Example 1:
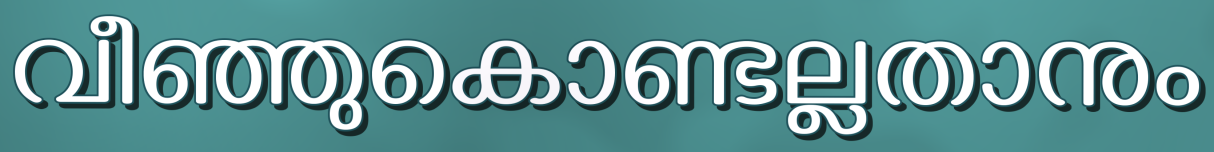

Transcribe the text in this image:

വീഞ്ഞുകൊണ്ടല്ലതാനും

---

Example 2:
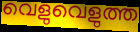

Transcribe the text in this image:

വെളുവെളുത്ത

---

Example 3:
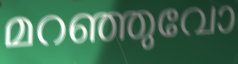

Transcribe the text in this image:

മറഞ്ഞുവോ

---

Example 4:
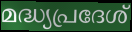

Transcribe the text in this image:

മദ്ധ്യപ്രദേശ്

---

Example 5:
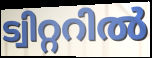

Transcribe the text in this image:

ട്വിറ്ററിൽ